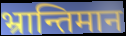
भ्रान्तिमान